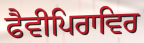
ਫੈਵੀਪਿਰਾਵਿਰ